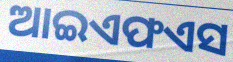
ଆଇଏଫଏସ